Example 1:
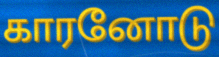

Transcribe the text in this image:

காரனோடு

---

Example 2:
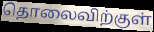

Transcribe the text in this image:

தொலைவிற்குள்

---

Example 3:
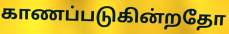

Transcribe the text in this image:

காணப்படுகின்றதோ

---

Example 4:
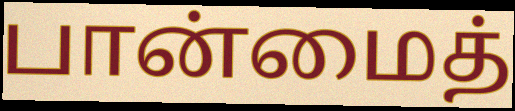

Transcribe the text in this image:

பான்மைத்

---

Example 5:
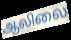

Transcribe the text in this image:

ஆலிலை